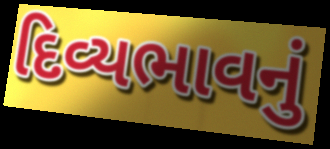
દિવ્યભાવનું